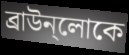
ব্রাউন্লোকে